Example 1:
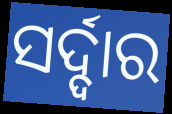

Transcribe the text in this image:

ସର୍ଦ୍ଦାର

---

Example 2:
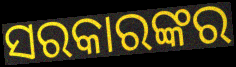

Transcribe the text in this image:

ସରକାରଙ୍କର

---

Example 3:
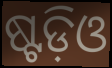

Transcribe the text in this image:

ଷ୍ଟଡ଼ିଓ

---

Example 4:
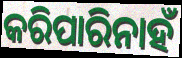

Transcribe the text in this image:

କରିପାରିନାହଁ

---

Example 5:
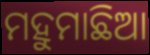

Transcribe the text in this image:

ମହୁମାଛିଆ